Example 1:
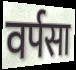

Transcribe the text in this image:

वर्पसा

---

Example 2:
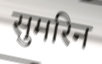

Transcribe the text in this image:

सुमरिन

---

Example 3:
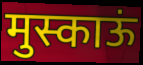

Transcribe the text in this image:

मुस्काऊं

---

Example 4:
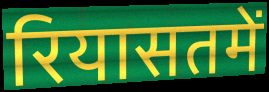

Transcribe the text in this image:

रियासतमें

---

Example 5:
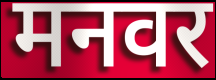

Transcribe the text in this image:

मनवर